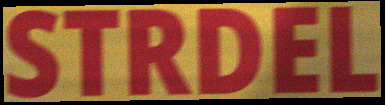
STRDEL